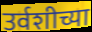
उर्वशीच्या